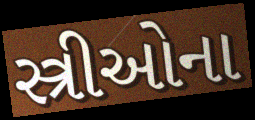
સ્ત્રીઓના